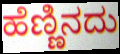
ಹೆಣ್ಣಿನದು